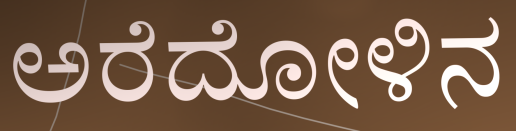
ಅರೆದೋಳಿನ